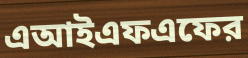
এআইএফএফের